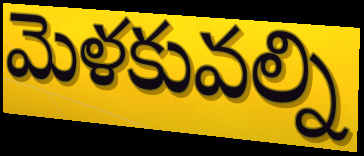
మెళకువల్ని